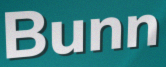
Bunn